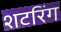
शटरिंग